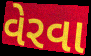
વેરવા